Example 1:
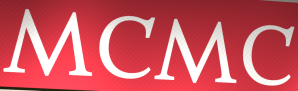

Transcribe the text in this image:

MCMC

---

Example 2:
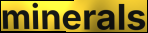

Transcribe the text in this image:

minerals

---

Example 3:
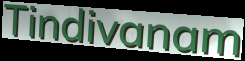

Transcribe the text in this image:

Tindivanam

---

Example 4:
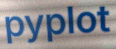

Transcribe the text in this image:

pyplot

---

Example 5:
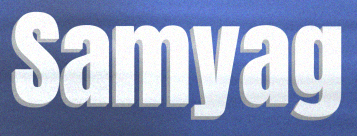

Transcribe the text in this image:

Samyag